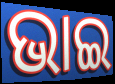
ଭାଇ